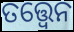
ତତ୍ତ୍ଵେନ